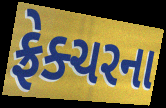
ફ્રેક્ચરના